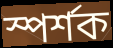
স্পর্শক